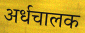
अर्धचालक